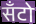
सँटो